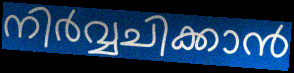
നിർവ്വചിക്കാൻ